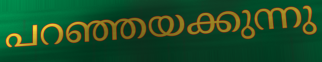
പറഞ്ഞയക്കുന്നു